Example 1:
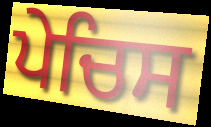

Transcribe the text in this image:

ਪੇਚਿਸ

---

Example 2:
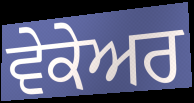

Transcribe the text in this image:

ਵੇਕੇਅਰ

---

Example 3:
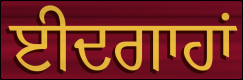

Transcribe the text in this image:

ਈਦਗਾਹਾਂ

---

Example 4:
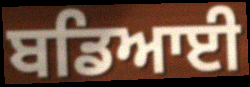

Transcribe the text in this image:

ਬਡਿਆਈ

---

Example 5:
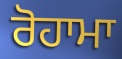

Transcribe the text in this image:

ਰੋਹਾਮਾ